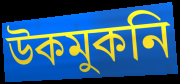
উকমুকনি